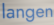
langen